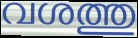
വശത്തു